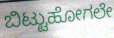
ಬಿಟ್ಟುಹೋಗಲೇ